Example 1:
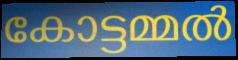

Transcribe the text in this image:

കോട്ടമ്മൽ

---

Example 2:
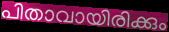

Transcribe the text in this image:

പിതാവായിരിക്കും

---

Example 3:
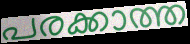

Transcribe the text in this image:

പരക്കാത്ത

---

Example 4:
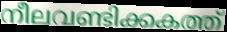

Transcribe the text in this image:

നീലവണ്ടിക്കകത്ത്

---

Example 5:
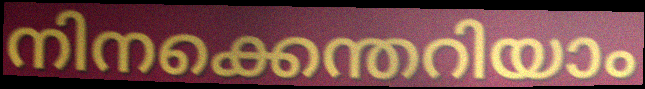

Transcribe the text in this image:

നിനക്കെന്തറിയാം